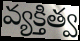
వ్యక్తిత్వ